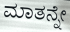
ಮಾತನ್ನೇ